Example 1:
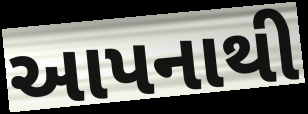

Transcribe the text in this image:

આપનાથી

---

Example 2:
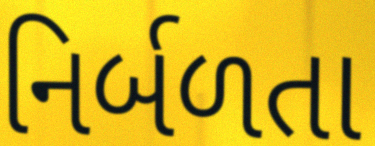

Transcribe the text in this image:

નિર્બળતા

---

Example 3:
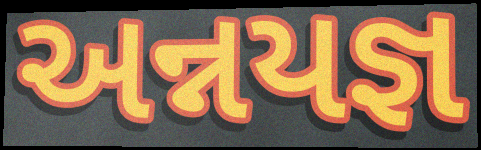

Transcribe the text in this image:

અન્નયજ્ઞ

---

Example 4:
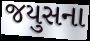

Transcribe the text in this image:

જયુસના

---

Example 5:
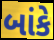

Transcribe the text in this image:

બાંકે